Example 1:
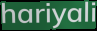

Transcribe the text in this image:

hariyali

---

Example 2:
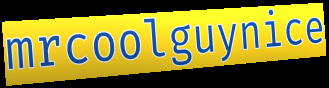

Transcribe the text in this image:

mrcoolguynice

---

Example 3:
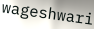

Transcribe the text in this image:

wageshwari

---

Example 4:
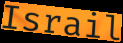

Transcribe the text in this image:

Israil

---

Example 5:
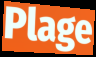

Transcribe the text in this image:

Plage